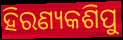
ହିରଣ୍ୟକଶିପୁ